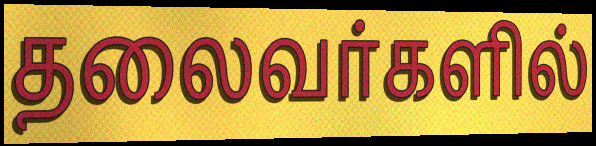
தலைவர்களில்